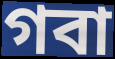
গবা